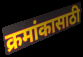
क्रमांकासाठी